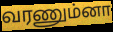
வரணும்னா